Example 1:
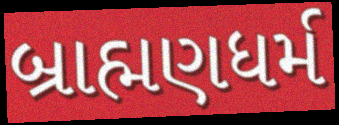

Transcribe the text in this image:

બ્રાહ્મણધર્મ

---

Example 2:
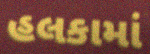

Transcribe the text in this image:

હલકામાં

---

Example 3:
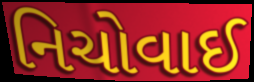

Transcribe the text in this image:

નિચોવાઈ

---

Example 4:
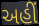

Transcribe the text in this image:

અહીં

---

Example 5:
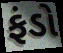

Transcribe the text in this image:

ફંડો